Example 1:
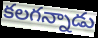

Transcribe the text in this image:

కలగన్నాడు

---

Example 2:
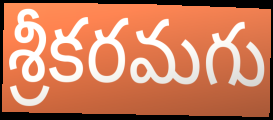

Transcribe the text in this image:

శ్రీకరమగు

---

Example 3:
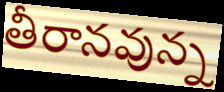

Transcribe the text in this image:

తీరానవున్న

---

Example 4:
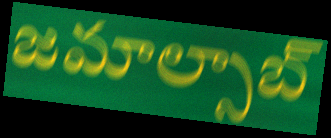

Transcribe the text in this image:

జమాల్సాబ్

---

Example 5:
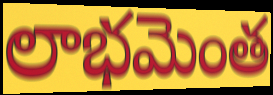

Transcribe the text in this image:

లాభమెంత